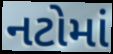
નટોમાં